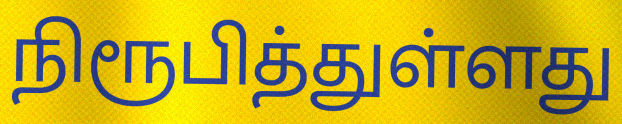
நிரூபித்துள்ளது